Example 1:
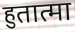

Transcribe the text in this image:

हुतात्मा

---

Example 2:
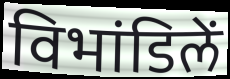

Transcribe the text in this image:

विभांडिलें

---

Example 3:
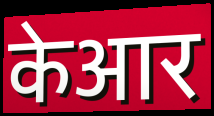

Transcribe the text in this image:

केआर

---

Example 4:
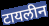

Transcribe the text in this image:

टायलीन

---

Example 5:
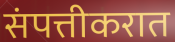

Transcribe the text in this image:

संपत्तीकरात